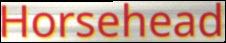
Horsehead